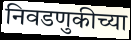
निवडणुकीच्या